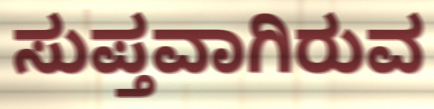
ಸುಪ್ತವಾಗಿರುವ